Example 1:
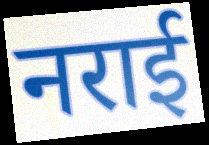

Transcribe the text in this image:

नराई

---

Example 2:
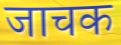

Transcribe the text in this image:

जाचक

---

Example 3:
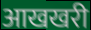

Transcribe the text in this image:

आखखरी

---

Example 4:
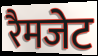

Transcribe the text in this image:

रैमजेट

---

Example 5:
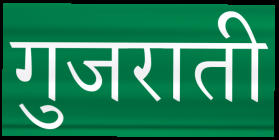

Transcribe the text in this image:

गुजराती